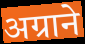
अग्राने